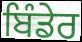
ਬਿੰਡੇਰ